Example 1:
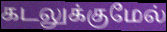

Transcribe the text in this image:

கடலுக்குமேல்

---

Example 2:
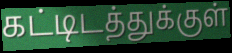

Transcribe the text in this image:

கட்டிடத்துக்குள்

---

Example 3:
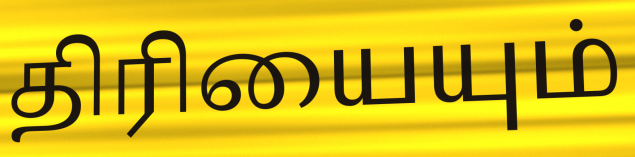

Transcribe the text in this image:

திரியையும்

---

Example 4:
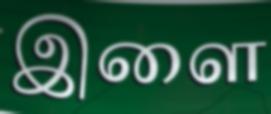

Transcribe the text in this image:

இளை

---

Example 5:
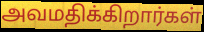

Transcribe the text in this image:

அவமதிக்கிறார்கள்